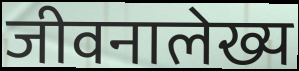
जीवनालेख्य